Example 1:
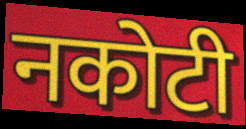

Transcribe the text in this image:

नकोटी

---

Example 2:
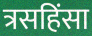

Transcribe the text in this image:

त्रसहिंसा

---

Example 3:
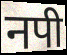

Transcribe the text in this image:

नपी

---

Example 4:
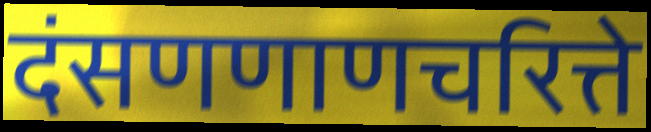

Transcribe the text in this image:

दंसणणाणचरित्ते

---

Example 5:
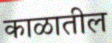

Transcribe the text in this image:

काळातील